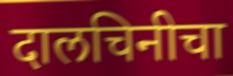
दालचिनीचा